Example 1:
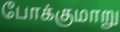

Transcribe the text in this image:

போக்குமாறு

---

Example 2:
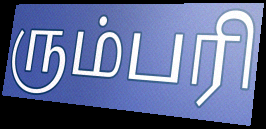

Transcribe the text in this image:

ரும்பரி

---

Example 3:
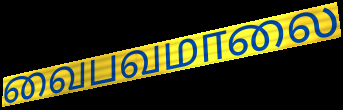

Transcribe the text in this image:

வைபவமாலை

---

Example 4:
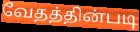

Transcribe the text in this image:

வேதத்தின்படி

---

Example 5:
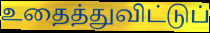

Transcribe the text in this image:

உதைத்துவிட்டுப்